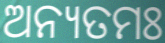
ଅନ୍ୟତମଃ